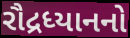
રૌદ્રધ્યાનનો